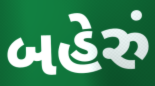
બહેરું